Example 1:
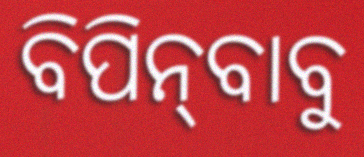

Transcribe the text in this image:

ବିପିନ୍‍ବାବୁ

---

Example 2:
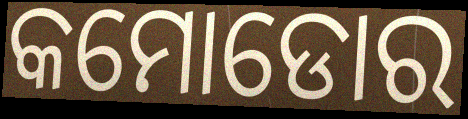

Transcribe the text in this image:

କମୋଡୋର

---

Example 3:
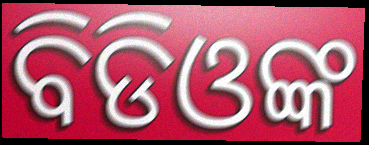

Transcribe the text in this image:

ବିଡିଓଙ୍କ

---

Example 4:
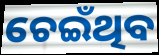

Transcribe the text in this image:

ଚେଇଁଥିବ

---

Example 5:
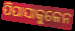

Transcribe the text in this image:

ପିପାସାକୁଳେନ